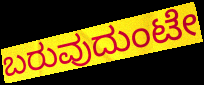
ಬರುವುದುಂಟೇ